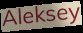
Aleksey